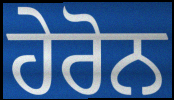
ਹੇਰੋਨ